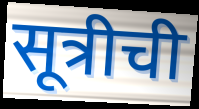
सूत्रीची